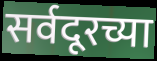
सर्वदूरच्या